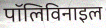
पॉलिविनाइल